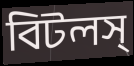
বিটলস্